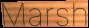
Marsh